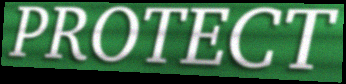
PROTECT